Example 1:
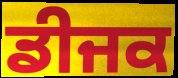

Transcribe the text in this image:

ਡੀਜਕ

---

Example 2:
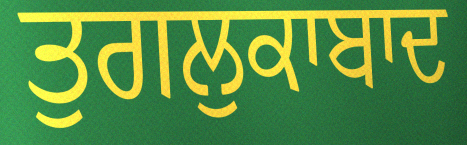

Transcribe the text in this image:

ਤੁਗਲੁਕਾਬਾਦ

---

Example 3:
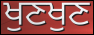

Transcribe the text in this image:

ਖੁਣਖੁਣ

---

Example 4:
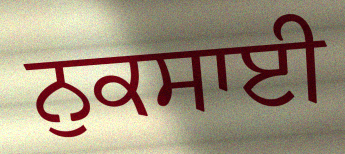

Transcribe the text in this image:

ਨੁਕਸਾਈ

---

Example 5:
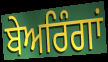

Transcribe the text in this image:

ਬੇਅਰਿੰਗਾਂ